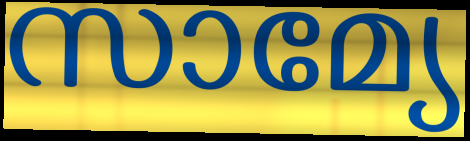
സാമ്യേ